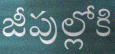
జీపుల్లోకి